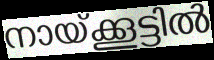
നായ്‌ക്കൂട്ടിൽ